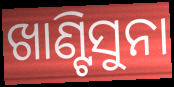
ଖାଣ୍ଟିସୁନା